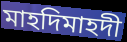
মাহদিমাহদী